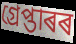
গ্ৰেপ্তাৰৰ